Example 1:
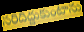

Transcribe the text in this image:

సరిదిద్దుకుంటాను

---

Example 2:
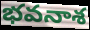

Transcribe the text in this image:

భవనాశ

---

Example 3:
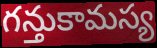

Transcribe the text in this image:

గన్తుకామస్య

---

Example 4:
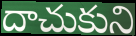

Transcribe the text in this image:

దాచుకుని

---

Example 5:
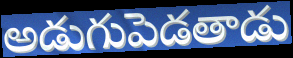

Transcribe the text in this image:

అడుగుపెడతాడు